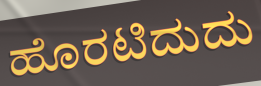
ಹೊರಟಿದುದು